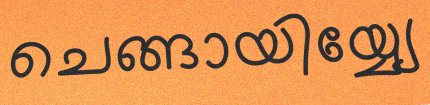
ചെങ്ങായിയ്യ്യേ